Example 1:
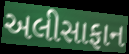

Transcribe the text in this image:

અલીસાફાન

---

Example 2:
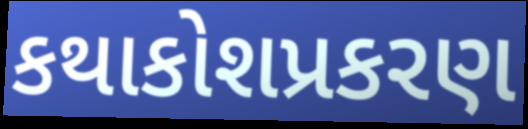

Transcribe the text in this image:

કથાકોશપ્રકરણ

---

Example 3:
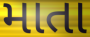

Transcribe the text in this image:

માતા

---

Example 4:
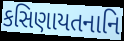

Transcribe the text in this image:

કસિણાયતનાનિ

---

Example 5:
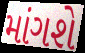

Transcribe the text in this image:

માંગશે